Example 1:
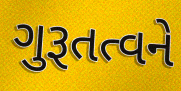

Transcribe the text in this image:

ગુરૂતત્વને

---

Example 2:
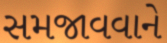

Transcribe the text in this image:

સમજાવવાને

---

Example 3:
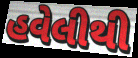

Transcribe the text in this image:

હવેલીથી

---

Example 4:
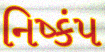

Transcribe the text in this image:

નિષ્કંપ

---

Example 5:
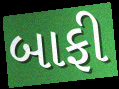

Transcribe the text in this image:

બાફી